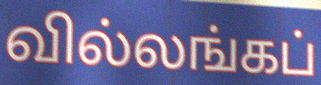
வில்லங்கப்